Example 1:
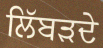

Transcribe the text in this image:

ਲਿੱਬੜਦੇ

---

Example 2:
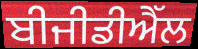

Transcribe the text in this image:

ਬੀਜੀਡੀਐੱਲ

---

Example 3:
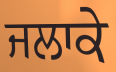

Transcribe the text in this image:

ਜਲਾਕੇ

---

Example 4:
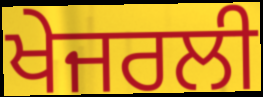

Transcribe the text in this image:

ਖੇਜਰਲੀ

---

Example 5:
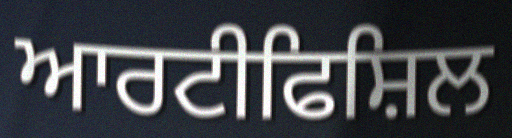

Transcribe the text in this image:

ਆਰਟੀਫਿਸ਼ਿਲ